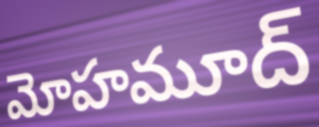
మోహమూద్